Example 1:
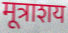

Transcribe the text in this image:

मूत्राशय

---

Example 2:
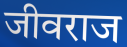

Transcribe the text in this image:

जीवराज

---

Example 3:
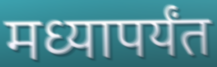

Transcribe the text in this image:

मध्यापर्यंत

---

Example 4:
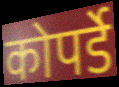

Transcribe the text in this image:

कोपर्डे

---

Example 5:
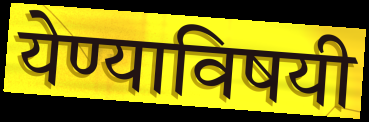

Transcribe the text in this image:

येण्याविषयी